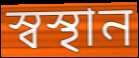
স্বস্থান